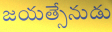
జయత్సేనుడు